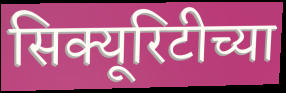
सिक्यूरिटीच्या